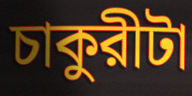
চাকুরীটা